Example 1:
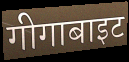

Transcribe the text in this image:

गीगाबाइट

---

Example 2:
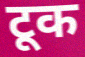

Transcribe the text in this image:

टूक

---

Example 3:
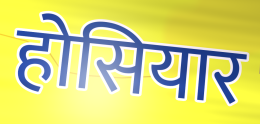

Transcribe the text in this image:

होसियार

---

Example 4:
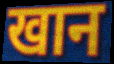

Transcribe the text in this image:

खान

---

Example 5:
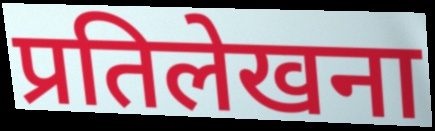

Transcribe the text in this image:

प्रतिलेखना